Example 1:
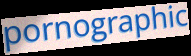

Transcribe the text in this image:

pornographic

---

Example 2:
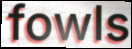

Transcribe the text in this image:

fowls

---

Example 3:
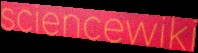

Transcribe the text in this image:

sciencewiki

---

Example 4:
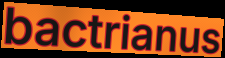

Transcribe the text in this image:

bactrianus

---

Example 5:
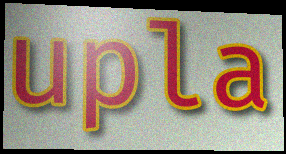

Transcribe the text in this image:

upla